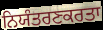
ਨਿਯੰਤਰਣਕਰਤਾ